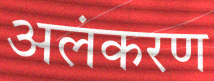
अलंकरण